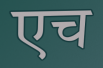
एच